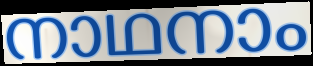
നാഥനാം